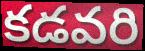
కడవరి